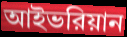
আইভরিয়ান